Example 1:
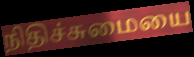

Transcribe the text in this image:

நிதிச்சுமையை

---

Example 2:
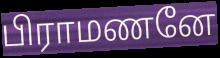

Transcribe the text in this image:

பிராமணனே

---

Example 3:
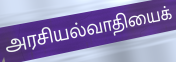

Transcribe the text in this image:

அரசியல்வாதியைக்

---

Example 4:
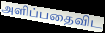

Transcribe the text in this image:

அளிப்பதைவிட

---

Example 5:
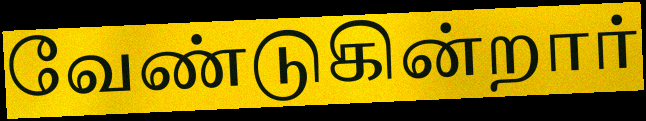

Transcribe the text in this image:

வேண்டுகின்றார்